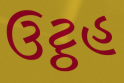
ઉટ્ઠહ